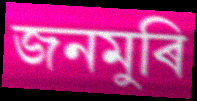
জনমুৰি